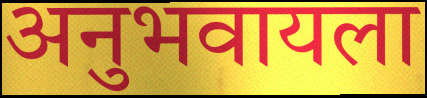
अनुभवायला